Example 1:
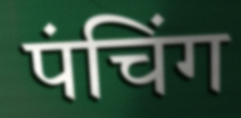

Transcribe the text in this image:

पंचिंग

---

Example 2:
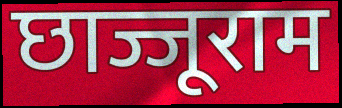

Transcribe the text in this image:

छाज्जूराम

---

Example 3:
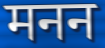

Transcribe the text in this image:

मनन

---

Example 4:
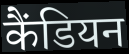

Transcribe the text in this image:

कैंडियन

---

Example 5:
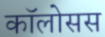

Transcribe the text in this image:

कॉलोसस